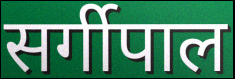
सर्गीपाल